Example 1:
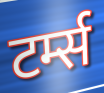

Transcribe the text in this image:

टर्म्स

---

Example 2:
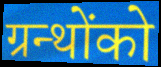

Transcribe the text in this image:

ग्रन्थोंको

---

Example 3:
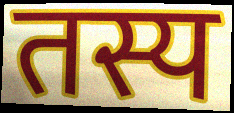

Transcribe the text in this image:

तस्य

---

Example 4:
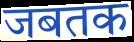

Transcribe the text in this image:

जबतक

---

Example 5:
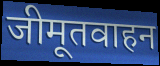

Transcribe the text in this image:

जीमूतवाहन